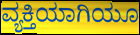
ವ್ಯಕ್ತಿಯಾಗಿಯೂ